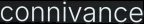
connivance